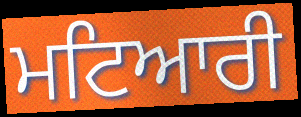
ਮਟਿਆਰੀ